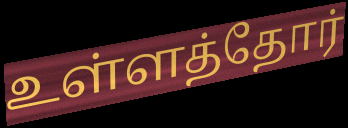
உள்ளத்தோர்